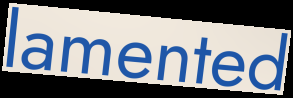
lamented